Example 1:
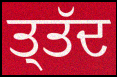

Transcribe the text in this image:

ਤ੍ਤੱਦ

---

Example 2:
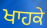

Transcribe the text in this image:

ਖਾਹਕੇ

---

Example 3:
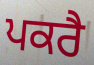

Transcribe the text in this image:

ਪਕਰੈ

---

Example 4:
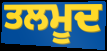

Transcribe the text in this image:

ਤਲਮੂਦ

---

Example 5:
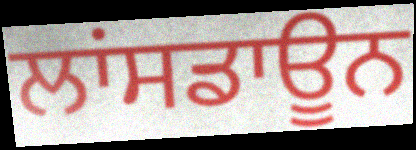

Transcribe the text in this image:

ਲਾਂਸਡਾਊਨ